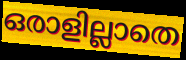
ഒരാളില്ലാതെ